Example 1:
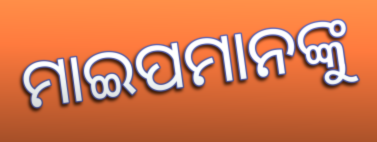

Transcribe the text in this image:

ମାଇପମାନଙ୍କୁ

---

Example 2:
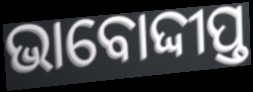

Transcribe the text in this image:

ଭାବୋଦ୍ଦୀପ୍ତ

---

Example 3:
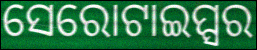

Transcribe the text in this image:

ସେରୋଟାଇପ୍ସର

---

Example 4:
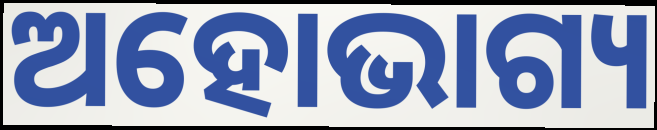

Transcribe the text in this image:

ଅହୋଭାଗ୍ୟ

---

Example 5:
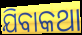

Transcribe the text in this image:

ଯିବାକଥା